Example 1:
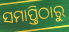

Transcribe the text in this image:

ସମାପ୍ତିଠାରୁ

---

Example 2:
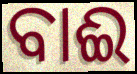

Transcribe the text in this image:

ବାଈ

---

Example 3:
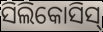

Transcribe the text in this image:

ସିଲିକୋସିସ୍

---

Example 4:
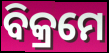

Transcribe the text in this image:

ବିକ୍ରମେ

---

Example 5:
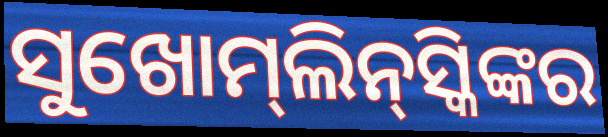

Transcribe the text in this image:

ସୁଖୋମ୍‍ଲିନ୍‍ସ୍କିଙ୍କର